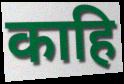
काहि